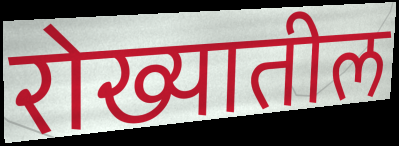
रोख्यातील